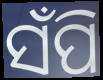
ସଁପି